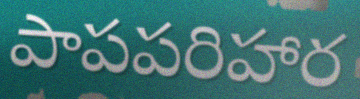
పాపపరిహార